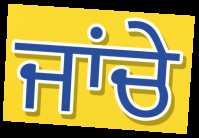
ਜਾਂਚੇ